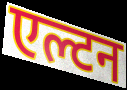
एल्टन